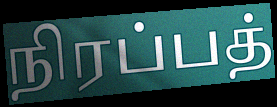
நிரப்பத்